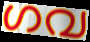
ഗവ